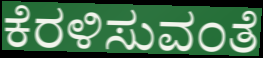
ಕೆರಳಿಸುವಂತೆ